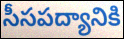
సీసపద్యానికి